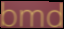
bmd